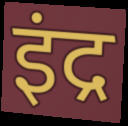
इंद्र